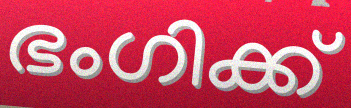
ഭംഗിക്ക്